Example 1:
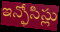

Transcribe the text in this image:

ఇన్ఫోసిస్లు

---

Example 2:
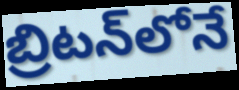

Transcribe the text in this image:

బ్రిటన్‌లోనే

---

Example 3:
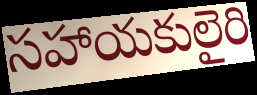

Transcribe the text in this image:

సహాయకులైరి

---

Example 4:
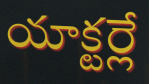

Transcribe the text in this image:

యాక్టర్లే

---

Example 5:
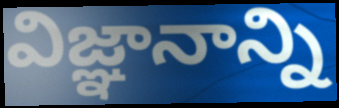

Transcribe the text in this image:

విజ్ఞానాన్ని